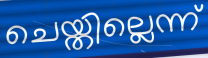
ചെയ്തില്ലെന്ന്